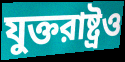
যুক্তরাষ্ট্রও